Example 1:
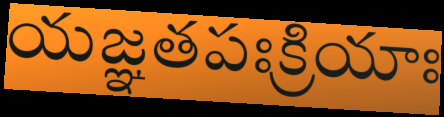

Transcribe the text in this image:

యజ్ఞతపఃక్రియాః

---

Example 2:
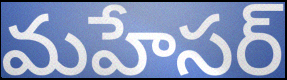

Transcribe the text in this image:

మహేసర్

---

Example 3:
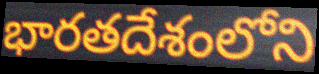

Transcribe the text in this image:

భారతదేశంలోని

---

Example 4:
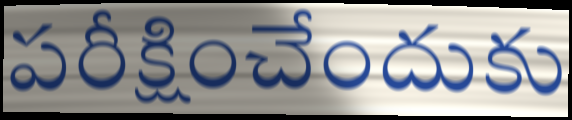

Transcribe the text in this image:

పరీక్షించేందుకు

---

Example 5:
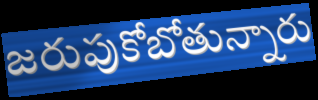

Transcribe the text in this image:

జరుపుకోబోతున్నారు